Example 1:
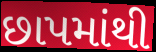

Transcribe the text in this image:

છાપમાંથી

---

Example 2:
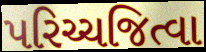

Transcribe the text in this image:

પરિચ્ચજિત્વા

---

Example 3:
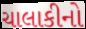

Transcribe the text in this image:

ચાલાકીનો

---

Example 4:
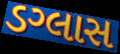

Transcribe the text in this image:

ડગ્લાસ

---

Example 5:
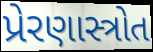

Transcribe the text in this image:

પ્રેરણાસ્ત્રોત